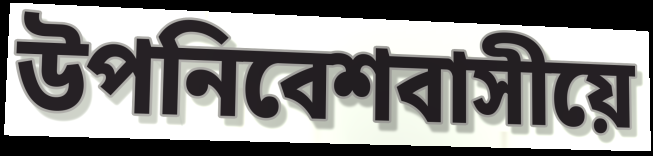
উপনিবেশবাসীয়ে